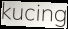
kucing